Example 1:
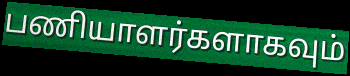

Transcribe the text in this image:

பணியாளர்களாகவும்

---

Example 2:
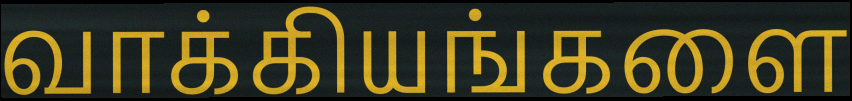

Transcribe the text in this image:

வாக்கியங்களை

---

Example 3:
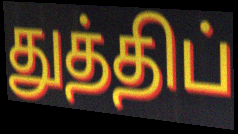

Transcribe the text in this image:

துத்திப்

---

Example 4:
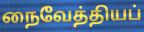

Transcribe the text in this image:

நைவேத்தியப்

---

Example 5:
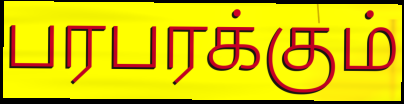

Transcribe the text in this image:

பரபரக்கும்